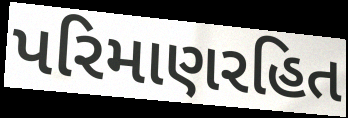
પરિમાણરહિત